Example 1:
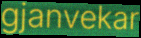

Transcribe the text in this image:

gjanvekar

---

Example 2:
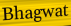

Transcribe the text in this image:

Bhagwat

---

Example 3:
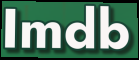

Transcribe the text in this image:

Imdb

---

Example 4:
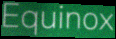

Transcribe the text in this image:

Equinox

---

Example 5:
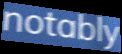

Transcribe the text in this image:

notably